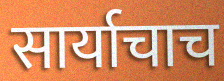
सार्याचाच